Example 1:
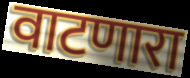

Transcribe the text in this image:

वाटणारा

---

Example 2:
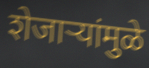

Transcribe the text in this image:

शेजाऱ्यांमुळे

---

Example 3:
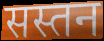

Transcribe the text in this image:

सस्तन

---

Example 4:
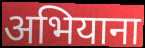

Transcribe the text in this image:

अभियाना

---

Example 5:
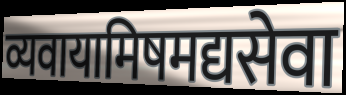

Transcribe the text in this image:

व्यवायामिषमद्यसेवा